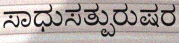
ಸಾಧುಸತ್ಪುರುಷರ